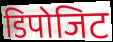
डिपोजिट